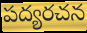
పద్యరచన